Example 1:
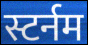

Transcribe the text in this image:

स्टर्नम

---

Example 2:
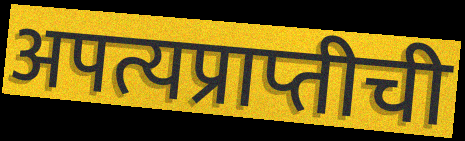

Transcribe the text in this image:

अपत्यप्राप्तीची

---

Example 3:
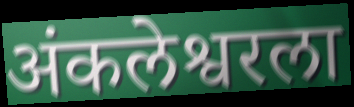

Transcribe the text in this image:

अंकलेश्वरला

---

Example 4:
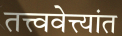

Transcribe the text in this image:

तत्त्ववेत्त्यांत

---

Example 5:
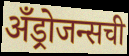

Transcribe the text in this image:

अँड्रोजन्सची